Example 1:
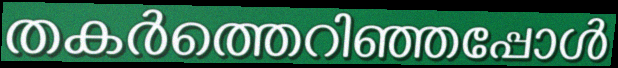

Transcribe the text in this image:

തകർത്തെറിഞ്ഞപ്പോൾ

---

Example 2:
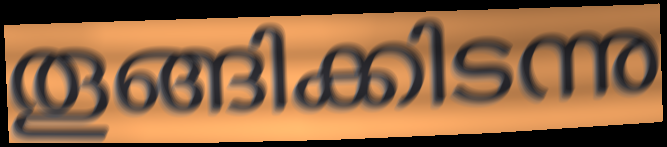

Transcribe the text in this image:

തൂങ്ങിക്കിടന്നു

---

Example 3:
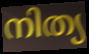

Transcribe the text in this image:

നിത്യ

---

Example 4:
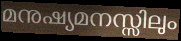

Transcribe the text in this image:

മനുഷ്യമനസ്സിലും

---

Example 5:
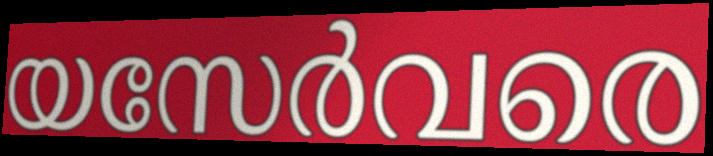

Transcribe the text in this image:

യസേർവരെ